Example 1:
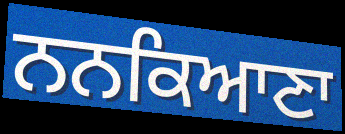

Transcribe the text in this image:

ਨਨਕਿਆਣਾ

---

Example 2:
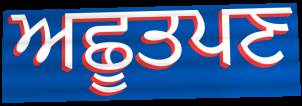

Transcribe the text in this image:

ਅਛੂਤਪਣ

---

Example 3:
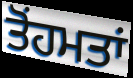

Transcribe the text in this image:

ਤੋਂਹਮਤਾਂ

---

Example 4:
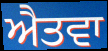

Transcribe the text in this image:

ਐਤਵਾ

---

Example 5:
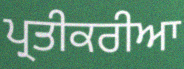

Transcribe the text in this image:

ਪ੍ਰਤੀਕਰੀਆ